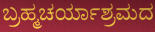
ಬ್ರಹ್ಮಚರ್ಯಾಶ್ರಮದ